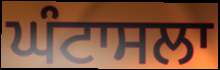
ਘੰਟਾਸਲਾ